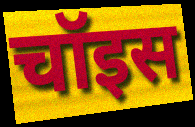
चॉइस